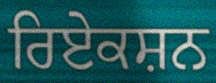
ਰਿਏਕਸ਼ਨ